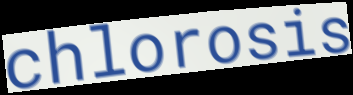
chlorosis